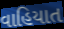
વાહિયાત